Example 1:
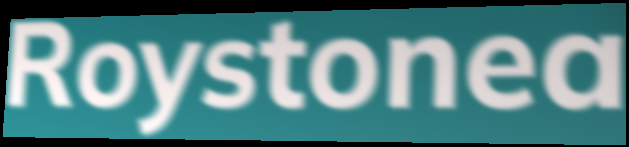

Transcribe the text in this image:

Roystonea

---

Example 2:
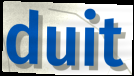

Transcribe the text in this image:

duit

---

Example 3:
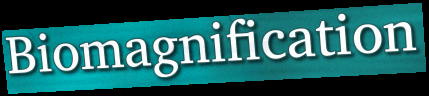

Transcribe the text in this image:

Biomagnification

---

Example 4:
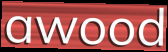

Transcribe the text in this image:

awood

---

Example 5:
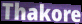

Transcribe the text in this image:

Thakore